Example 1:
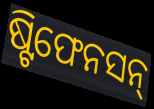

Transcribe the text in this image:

ଷ୍ଟିଫେନସନ୍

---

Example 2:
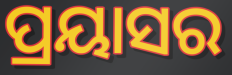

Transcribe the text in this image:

ପ୍ରୟାସର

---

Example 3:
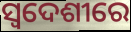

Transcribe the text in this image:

ସ୍ୱଦେଶୀରେ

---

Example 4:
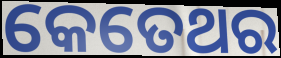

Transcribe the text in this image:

କେତେଥର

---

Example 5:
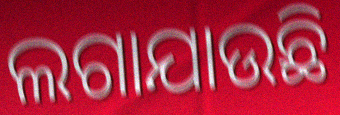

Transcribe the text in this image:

ଲଗାଯାଉଛି